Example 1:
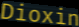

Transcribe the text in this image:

Dioxin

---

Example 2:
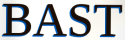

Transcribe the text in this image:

BAST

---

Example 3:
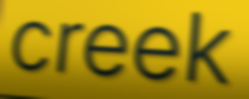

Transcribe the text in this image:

creek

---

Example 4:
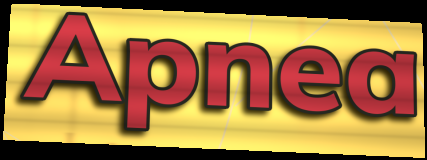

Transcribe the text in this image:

Apnea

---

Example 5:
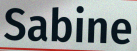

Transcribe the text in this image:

Sabine